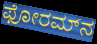
ಫೋರಮ್‌ನ